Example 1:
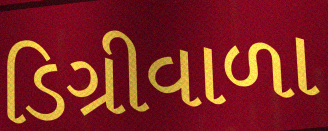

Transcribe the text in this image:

ડિગ્રીવાળા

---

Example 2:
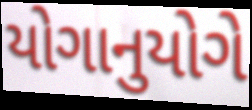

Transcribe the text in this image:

યોગાનુયોગે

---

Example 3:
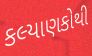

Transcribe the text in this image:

કલ્યાણકોથી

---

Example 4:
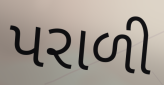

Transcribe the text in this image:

પરાળી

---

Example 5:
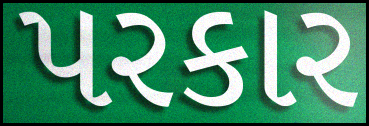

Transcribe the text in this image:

પરકાર